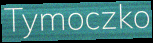
Tymoczko